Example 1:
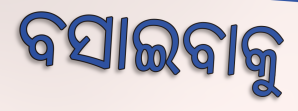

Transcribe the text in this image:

ବସାଇବାକୁ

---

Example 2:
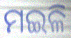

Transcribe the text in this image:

ମଇଳି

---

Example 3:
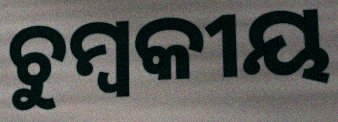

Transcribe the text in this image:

ଚୁମ୍ବକୀୟ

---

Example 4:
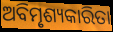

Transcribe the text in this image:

ଅବିମୃଶ୍ୟକାରିତା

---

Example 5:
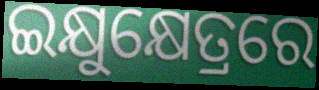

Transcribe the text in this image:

ଇକ୍ଷୁକ୍ଷେତ୍ରରେ